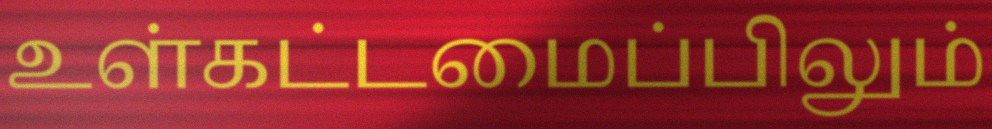
உள்கட்டமைப்பிலும்